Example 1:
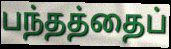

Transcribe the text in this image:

பந்தத்தைப்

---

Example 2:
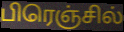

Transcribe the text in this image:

பிரெஞ்சில்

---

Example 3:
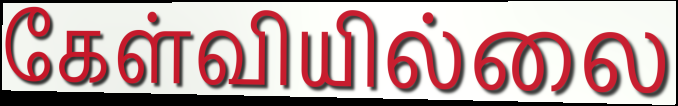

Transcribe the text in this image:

கேள்வியில்லை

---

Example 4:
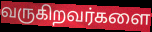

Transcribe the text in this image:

வருகிறவர்களை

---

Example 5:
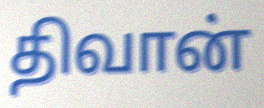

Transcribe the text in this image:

திவான்